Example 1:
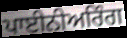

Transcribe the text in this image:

ਪਾਈਨੀਅਰਿੰਗ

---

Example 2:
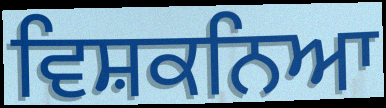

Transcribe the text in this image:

ਵਿਸ਼ਕਨਿਆ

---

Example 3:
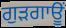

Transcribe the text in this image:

ਗੁੜਗਾਊਂ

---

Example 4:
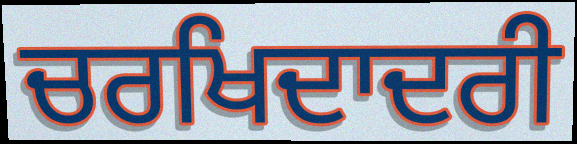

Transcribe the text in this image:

ਚਰਖਿਦਾਦਰੀ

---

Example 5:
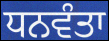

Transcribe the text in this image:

ਧਨਵੰਤਾ